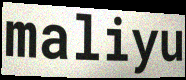
maliyu